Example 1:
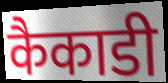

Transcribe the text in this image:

कैकाडी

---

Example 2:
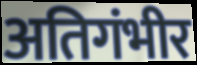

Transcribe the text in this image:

अतिगंभीर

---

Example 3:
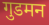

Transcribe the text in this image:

गुडमन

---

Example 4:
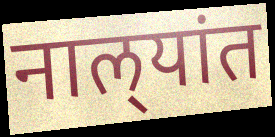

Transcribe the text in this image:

नाल्यांत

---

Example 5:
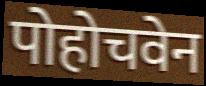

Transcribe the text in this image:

पोहोचवेन